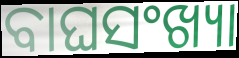
ବାଘସଂଖ୍ୟା